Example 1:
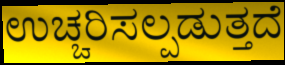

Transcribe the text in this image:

ಉಚ್ಚರಿಸಲ್ಪಡುತ್ತದೆ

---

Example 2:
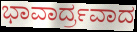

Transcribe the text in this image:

ಭಾವಾರ್ದ್ರವಾದ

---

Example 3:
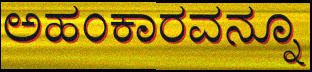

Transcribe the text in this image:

ಅಹಂಕಾರವನ್ನೂ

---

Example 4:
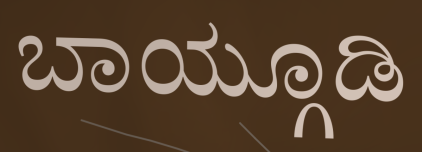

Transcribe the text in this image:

ಬಾಯ್ಗೂಡಿ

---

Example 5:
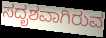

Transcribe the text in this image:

ಸದೃಶವಾಗಿರುವ